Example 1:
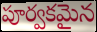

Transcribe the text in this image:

పూర్వకమైన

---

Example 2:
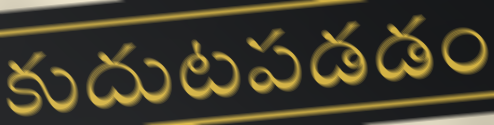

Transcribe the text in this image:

కుదుటపడడం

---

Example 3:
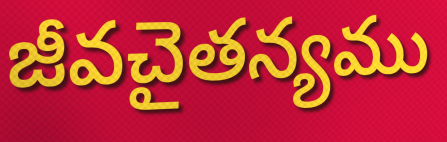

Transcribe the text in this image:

జీవచైతన్యము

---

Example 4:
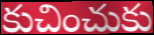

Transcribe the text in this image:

కుచించుకు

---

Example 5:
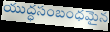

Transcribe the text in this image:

యుద్ధసంబంధమైన